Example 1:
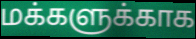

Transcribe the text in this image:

மக்களுக்காக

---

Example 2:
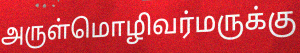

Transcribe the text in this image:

அருள்மொழிவர்மருக்கு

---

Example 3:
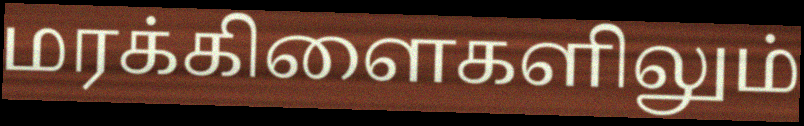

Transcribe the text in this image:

மரக்கிளைகளிலும்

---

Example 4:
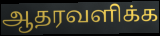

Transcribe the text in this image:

ஆதரவளிக்க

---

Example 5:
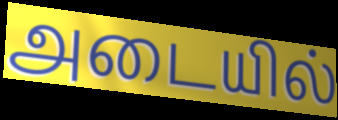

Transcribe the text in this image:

அடையில்